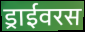
ड्राईवरस